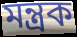
মন্ত্রক